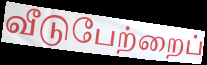
வீடுபேற்றைப்